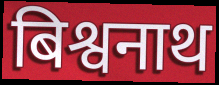
बिश्वनाथ